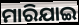
ମାରିଯାଇ